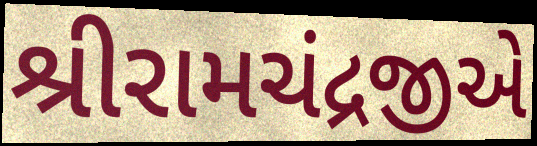
શ્રીરામચંદ્રજીએ